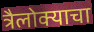
त्रैलोक्याचा